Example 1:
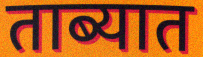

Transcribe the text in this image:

ताब्यात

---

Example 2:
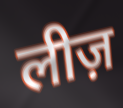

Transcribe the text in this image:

लीज़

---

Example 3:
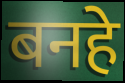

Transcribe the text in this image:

बनहे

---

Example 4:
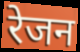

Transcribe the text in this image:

रेजन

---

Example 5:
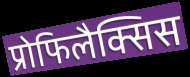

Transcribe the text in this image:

प्रोफिलैक्सिस